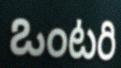
ఒంటరి